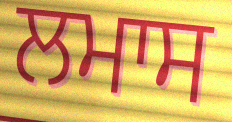
ਲਮਾਸ